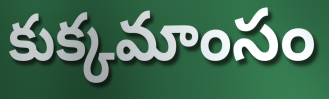
కుక్కమాంసం